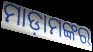
ମାଡ଼ାମଙ୍କର